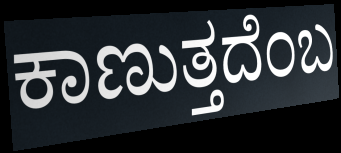
ಕಾಣುತ್ತದೆಂಬ